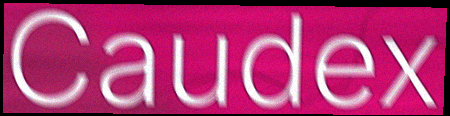
Caudex